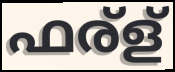
ഫര്ള്